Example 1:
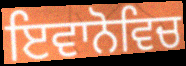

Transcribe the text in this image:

ਇਵਾਨੋਵਿਚ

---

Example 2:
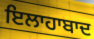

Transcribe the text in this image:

ਇਲਾਹਾਬਾਦ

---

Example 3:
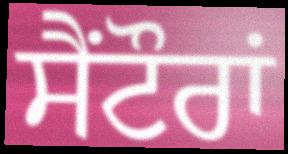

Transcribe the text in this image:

ਸੈਂਟੌਰਾਂ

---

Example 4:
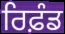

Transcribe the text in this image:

ਰਿਫ਼ੰਡ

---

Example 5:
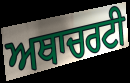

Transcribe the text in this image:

ਅਥਾਚਰਟੀ